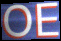
OE